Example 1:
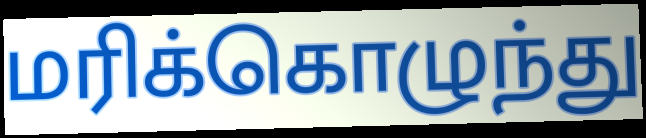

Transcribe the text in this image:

மரிக்கொழுந்து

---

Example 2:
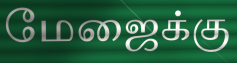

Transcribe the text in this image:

மேஜைக்கு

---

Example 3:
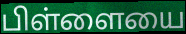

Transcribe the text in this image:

பிள்ளையை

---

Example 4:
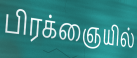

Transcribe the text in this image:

பிரக்ஞையில்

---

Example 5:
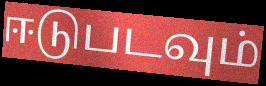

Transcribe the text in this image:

ஈடுபடவும்